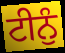
ਟੀਨੁੰ